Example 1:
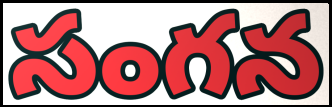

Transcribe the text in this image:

సంగన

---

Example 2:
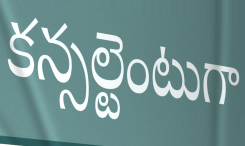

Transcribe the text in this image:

కన్సల్టెంటుగా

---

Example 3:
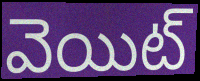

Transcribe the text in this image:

వెయిట్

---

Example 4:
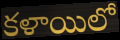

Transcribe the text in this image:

కళాయిలో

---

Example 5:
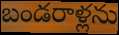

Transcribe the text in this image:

బండరాళ్లను